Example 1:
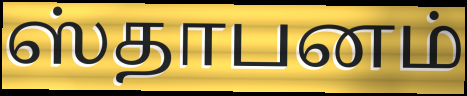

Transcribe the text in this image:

ஸ்தாபனம்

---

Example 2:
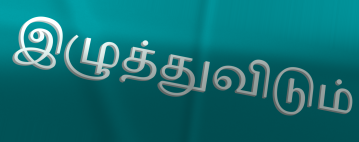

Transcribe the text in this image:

இழுத்துவிடும்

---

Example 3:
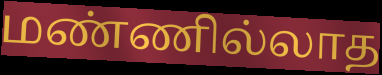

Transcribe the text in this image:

மண்ணில்லாத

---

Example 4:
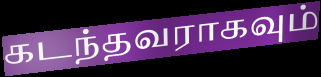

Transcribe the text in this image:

கடந்தவராகவும்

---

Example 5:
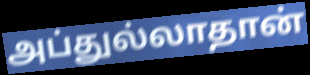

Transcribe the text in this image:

அப்துல்லாதான்